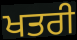
ਖਤਰੀ